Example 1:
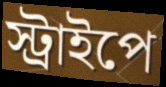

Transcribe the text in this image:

স্ট্রাইপে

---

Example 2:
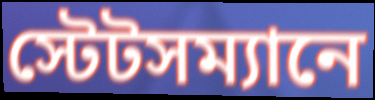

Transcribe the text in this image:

স্টেটসম্যানে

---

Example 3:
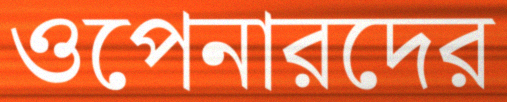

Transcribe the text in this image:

ওপেনারদের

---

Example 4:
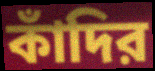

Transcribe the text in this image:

কাঁদির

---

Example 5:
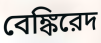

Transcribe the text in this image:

বেঙ্কিরেদ